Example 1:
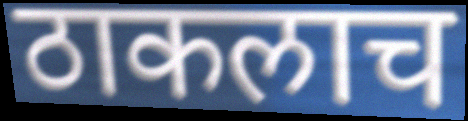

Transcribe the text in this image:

ठाकलाच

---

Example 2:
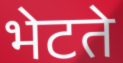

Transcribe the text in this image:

भेटते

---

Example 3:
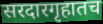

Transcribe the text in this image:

सरदारगृहातच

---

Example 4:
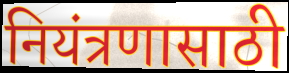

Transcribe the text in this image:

नियंत्रणासाठी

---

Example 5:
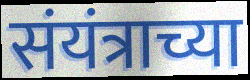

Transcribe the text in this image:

संयंत्राच्या